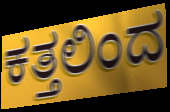
ಕತ್ತಲಿಂದ